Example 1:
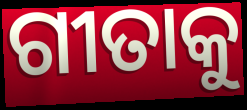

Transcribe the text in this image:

ଗୀତାକୁ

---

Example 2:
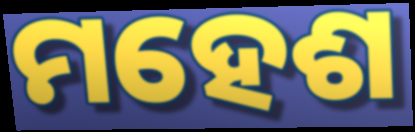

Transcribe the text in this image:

ମହେଶ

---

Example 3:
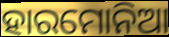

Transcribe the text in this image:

ହାରମୋନିଆ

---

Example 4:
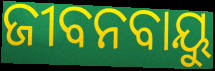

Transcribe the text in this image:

ଜୀବନବାୟୁ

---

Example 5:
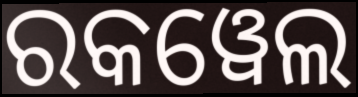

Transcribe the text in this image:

ରକୱେଲ